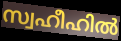
സ്വഹീഹിൽ